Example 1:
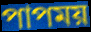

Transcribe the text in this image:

পাপময়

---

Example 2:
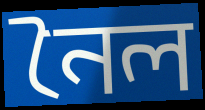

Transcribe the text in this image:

নৈল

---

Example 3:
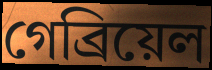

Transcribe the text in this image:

গেব্রিয়েল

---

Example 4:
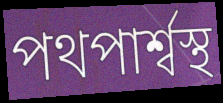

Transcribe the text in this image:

পথপার্শ্বস্থ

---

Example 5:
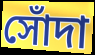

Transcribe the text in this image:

সোঁদা